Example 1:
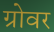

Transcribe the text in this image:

ग्रोवर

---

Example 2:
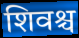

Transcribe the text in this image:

शिवश्च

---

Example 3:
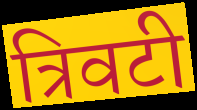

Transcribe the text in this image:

त्रिवटी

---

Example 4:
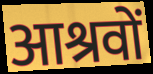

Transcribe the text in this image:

आश्रवों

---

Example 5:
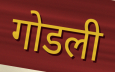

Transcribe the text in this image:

गोडली